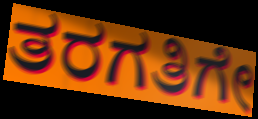
ತರಗತಿಗೇ